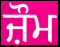
ਜ਼ੌਮ